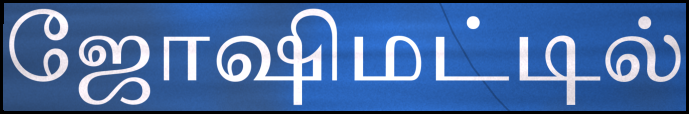
ஜோஷிமட்டில்